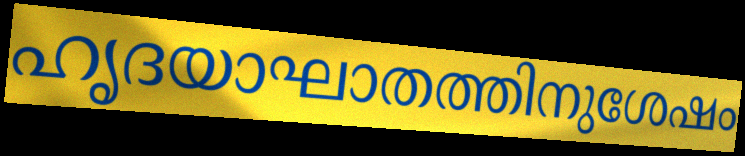
ഹൃദയാഘാതത്തിനുശേഷം